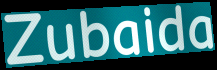
Zubaida